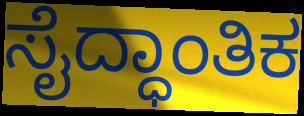
ಸೈದ್ಧಾಂತಿಕ